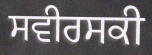
ਸਵੀਰਸਕੀ